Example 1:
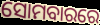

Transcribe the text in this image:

ସୋମବାରରେ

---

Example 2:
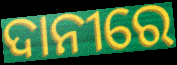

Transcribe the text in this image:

ଦାନୀରେ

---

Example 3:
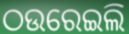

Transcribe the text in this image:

ଠଉରେଇଲି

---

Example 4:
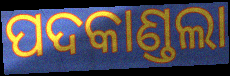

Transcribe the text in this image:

ପଦକାଣ୍ଡଲା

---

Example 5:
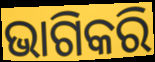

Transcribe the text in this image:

ଭାଗିକରି